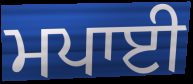
ਮਪਾਈ